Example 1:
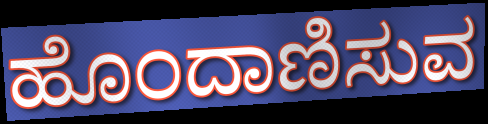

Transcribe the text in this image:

ಹೊಂದಾಣಿಸುವ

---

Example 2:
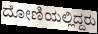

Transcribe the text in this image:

ದೋಣಿಯಲ್ಲಿದ್ದರು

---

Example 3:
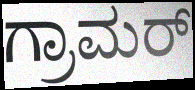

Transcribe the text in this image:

ಗ್ರಾಮರ್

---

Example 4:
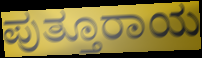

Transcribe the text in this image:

ಪುತ್ತೂರಾಯ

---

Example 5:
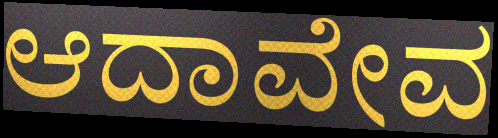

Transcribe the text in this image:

ಆದಾವೇವ